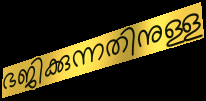
ഭജിക്കുന്നതിനുള്ള